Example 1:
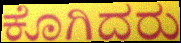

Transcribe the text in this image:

ಕೊಗಿದರು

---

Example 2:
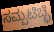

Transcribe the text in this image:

ಸಮ್ಪಟಿಚ್ಛಿ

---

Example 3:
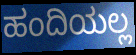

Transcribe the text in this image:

ಹಂದಿಯಲ್ಲ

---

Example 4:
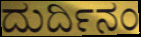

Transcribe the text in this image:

ದುರ್ದಿನಂ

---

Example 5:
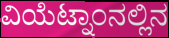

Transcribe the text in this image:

ವಿಯೆಟ್ನಾಂನಲ್ಲಿನ